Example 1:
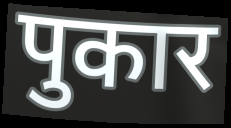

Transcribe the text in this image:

पुकार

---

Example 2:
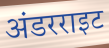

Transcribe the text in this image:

अंडरराइट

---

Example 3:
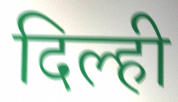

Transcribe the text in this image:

दिल्ही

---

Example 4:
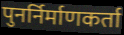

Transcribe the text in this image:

पुनर्निर्माणकर्ता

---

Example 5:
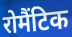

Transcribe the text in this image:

रोमैंटिक